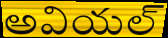
అవియల్